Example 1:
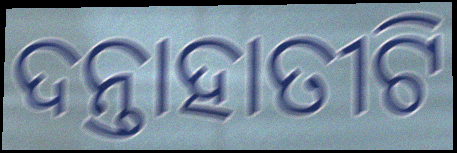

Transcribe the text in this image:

ଦନ୍ତାହାତୀଟି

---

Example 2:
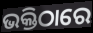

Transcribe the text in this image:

ଭକ୍ତିଠାରେ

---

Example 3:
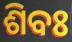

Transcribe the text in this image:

ଶିବଃ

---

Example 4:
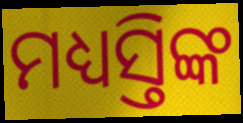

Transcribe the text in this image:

ମଧ୍ୟସ୍ତିଙ୍କ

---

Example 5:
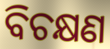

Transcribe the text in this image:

ବିଚକ୍ଷଣ